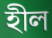
হীল